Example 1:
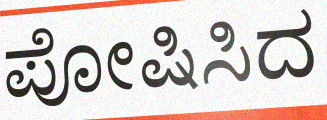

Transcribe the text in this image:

ಪೋಷಿಸಿದ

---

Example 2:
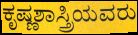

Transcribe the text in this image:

ಕೃಷ್ಣಶಾಸ್ತ್ರಿಯವರು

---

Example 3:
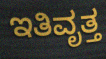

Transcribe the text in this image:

ಇತಿವೃತ್ತ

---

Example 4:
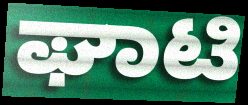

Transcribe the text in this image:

ಘಾಟಿ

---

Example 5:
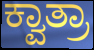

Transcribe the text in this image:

ಕ್ವಾತ್ರಾ